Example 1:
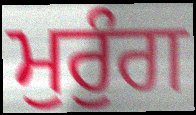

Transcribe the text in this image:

ਮੁਰੁੰਗ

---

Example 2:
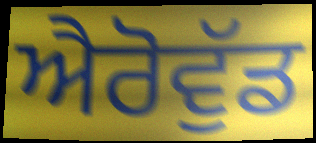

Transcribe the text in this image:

ਐਰੋਵੁੱਡ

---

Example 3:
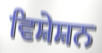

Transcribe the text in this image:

ਵਿਸ਼ੇਸ਼ਨ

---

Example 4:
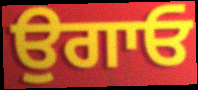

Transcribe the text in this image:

ਉਗਾਓ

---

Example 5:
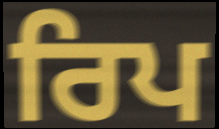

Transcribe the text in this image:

ਰਿਪ